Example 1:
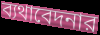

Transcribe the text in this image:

ব্যথাবেদনার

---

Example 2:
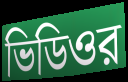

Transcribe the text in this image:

ভিডিওর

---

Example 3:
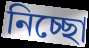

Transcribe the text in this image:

নিচ্ছো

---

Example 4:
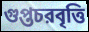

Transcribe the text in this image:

গুপ্তচরবৃত্তি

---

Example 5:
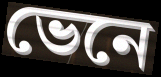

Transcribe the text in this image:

ভেনে